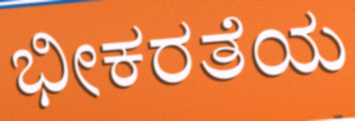
ಭೀಕರತೆಯ